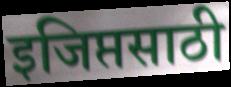
इजिप्तसाठी